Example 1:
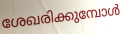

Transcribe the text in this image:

ശേഖരിക്കുമ്പോൾ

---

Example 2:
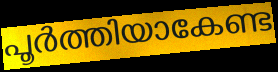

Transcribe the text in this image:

പൂർത്തിയാകേണ്ട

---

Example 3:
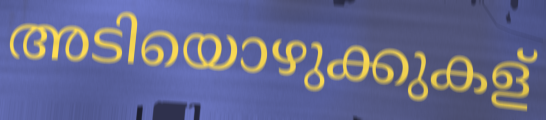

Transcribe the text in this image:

അടിയൊഴുക്കുകള്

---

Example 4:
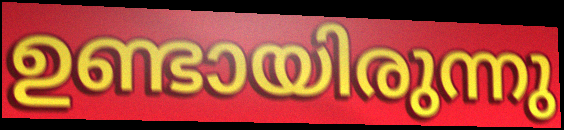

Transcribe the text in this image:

ഉണ്ടായിരുന്നു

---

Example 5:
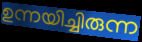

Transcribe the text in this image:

ഉന്നയിച്ചിരുന്ന